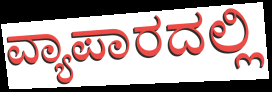
ವ್ಯಾಪಾರದಲ್ಲಿ